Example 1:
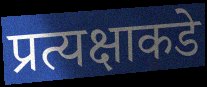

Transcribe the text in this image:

प्रत्यक्षाकडे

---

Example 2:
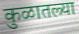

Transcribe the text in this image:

कुळातल्या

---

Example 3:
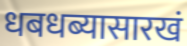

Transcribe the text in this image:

धबधब्यासारखं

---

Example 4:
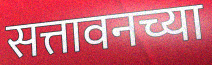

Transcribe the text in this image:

सत्तावनच्या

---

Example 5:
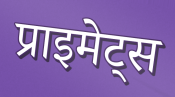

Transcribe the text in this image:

प्राइमेट्स